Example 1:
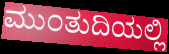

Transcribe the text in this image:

ಮುಂತುದಿಯಲ್ಲಿ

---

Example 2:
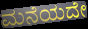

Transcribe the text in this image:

ಮನೆಯದೇ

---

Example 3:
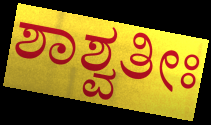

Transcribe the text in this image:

ಶಾಶ್ವತೀಃ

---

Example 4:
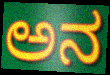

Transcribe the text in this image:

ಅನ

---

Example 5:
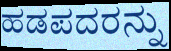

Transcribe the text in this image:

ಹಡಪದರನ್ನು